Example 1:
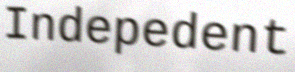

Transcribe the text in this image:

Indepedent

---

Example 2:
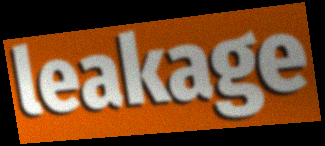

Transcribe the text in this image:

leakage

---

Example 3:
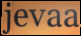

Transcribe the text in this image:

jevaa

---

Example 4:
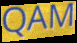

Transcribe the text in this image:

QAM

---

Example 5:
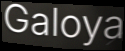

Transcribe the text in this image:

Galoya